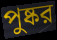
পুষ্কর